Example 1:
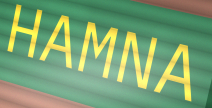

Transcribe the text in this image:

HAMNA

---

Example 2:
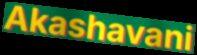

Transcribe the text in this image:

Akashavani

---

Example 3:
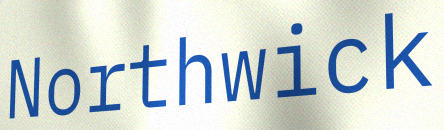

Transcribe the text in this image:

Northwick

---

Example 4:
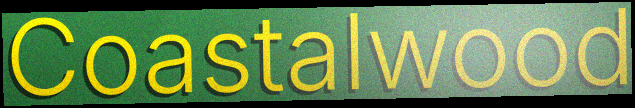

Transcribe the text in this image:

Coastalwood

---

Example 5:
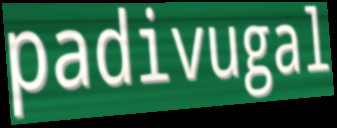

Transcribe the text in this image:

padivugal